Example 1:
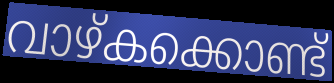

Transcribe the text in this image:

വാഴ്കക്കൊണ്ട്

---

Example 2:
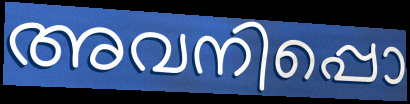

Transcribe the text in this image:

അവനിപ്പൊ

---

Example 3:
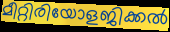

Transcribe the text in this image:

മീറ്റിരിയോളജിക്കൽ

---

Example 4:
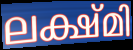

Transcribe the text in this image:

ലക്ഷ്‌മി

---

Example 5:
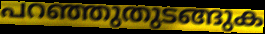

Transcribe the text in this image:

പറഞ്ഞുതുടങ്ങുക